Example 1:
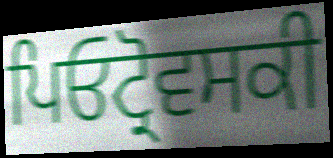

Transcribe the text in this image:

ਪਿਓਟ੍ਰੋਵਸਕੀ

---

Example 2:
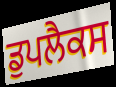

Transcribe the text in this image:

ਡੁਪਲੈਕਸ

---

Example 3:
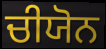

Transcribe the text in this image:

ਚੀਯੋਨ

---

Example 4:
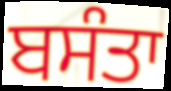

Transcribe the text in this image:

ਬਸੰਤਾ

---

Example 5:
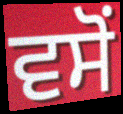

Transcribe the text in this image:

ਵਸੋਂ